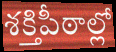
శక్తిపీఠాల్లో